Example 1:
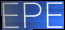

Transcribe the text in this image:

EPE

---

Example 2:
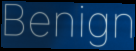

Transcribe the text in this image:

Benign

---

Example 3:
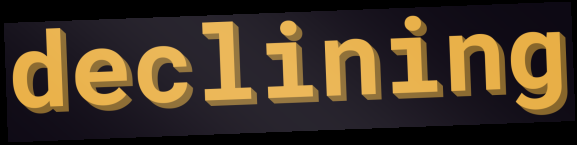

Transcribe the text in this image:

declining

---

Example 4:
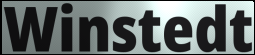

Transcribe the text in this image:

Winstedt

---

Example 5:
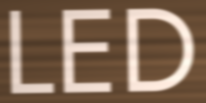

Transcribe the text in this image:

LED